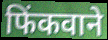
फिंकवाने